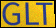
GLT